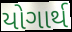
યોગાર્થ